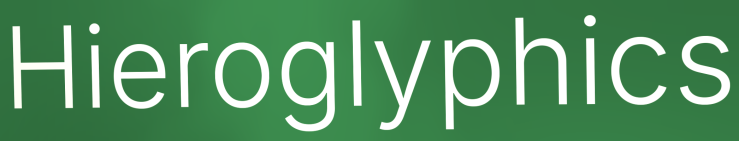
Hieroglyphics